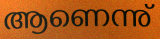
ആണെന്നു്